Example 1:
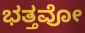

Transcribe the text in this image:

ಭತ್ತವೋ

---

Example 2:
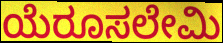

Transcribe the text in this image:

ಯೆರೂಸಲೇಮಿ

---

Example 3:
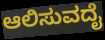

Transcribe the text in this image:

ಆಲಿಸುವದೈ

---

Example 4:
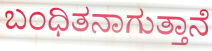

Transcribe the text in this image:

ಬಂಧಿತನಾಗುತ್ತಾನೆ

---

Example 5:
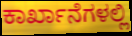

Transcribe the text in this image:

ಕಾರ್ಖಾನೆಗಳಲ್ಲಿ